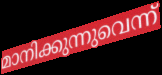
മാനിക്കുന്നുവെന്ന്